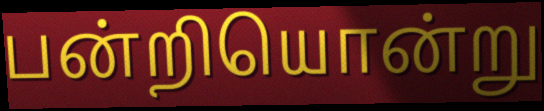
பன்றியொன்று